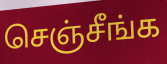
செஞ்சீங்க